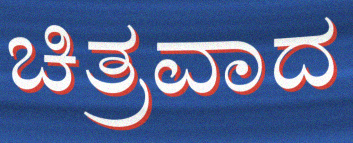
ಚಿತ್ರವಾದ